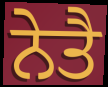
ਨੇਤੈ